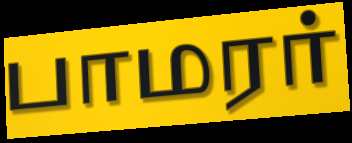
பாமரர்